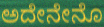
ಅದೇನೇನೊ